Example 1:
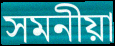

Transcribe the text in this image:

সমনীয়া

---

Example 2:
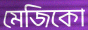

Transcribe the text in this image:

মেজিকো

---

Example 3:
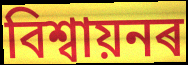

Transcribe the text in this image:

বিশ্ৱায়নৰ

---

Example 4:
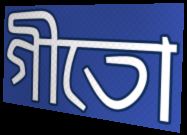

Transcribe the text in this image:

গীতো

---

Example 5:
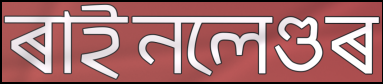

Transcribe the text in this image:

ৰাইনলেণ্ডৰ